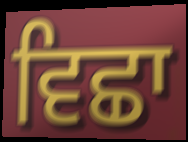
ਵਿਛਾ